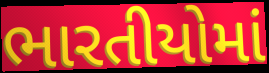
ભારતીયોમાં